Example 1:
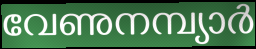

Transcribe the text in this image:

വേണുനമ്പ്യാർ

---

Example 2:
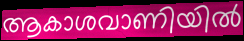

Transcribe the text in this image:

ആകാശവാണിയിൽ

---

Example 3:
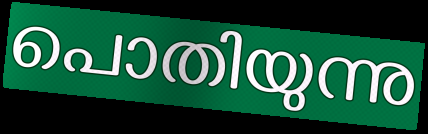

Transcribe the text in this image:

പൊതിയുന്നു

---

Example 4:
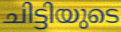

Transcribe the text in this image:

ചിട്ടിയുടെ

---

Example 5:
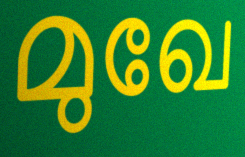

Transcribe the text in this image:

മുഖേ